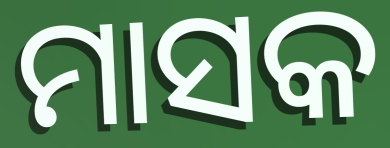
ମାସକ